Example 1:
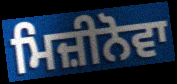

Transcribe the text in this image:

ਮਿਜ਼ੀਨੋਵਾ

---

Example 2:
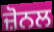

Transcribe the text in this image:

ਜ਼ੋਨਲ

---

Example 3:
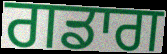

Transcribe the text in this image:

ਗਡਾਗ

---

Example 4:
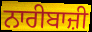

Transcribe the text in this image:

ਨਾਰੀਬਾਜ਼ੀ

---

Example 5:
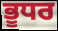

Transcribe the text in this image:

ਭੂਧਰ